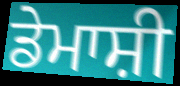
ਡੇਮਾਸ਼ੀ